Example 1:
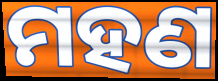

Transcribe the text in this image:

ମହଣ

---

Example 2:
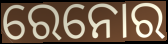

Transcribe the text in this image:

ରେନୋର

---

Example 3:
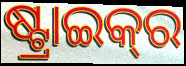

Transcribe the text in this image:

ଷ୍ଟ୍ରାଇକ୍‍ର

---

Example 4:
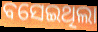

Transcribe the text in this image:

ବସେଇଥିଲା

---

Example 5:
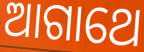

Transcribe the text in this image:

ଆଗାଥେ